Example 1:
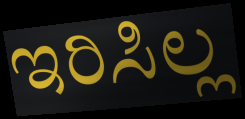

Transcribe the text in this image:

ಇರಿಸಿಲ್ಲ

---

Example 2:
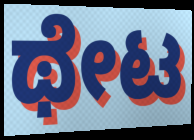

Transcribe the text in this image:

ಥೇಟ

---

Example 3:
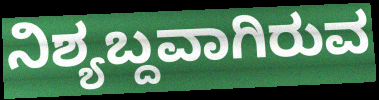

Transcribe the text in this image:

ನಿಶ್ಯಬ್ದವಾಗಿರುವ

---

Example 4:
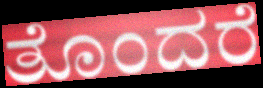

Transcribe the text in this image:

ತೊಂದರೆ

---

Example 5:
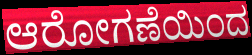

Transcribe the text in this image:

ಆರೋಗಣೆಯಿಂದ